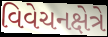
વિવેચનક્ષેત્રે